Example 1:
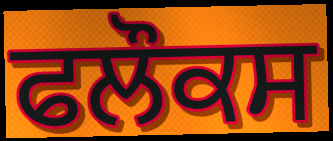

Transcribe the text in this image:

ਫਲੌਕਸ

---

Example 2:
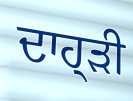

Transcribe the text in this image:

ਦਾਹ੍ੜੀ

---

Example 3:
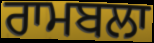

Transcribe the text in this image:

ਰਾਮਬਲਾ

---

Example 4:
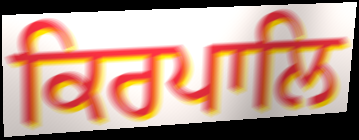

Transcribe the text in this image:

ਕਿਰਪਾਲਿ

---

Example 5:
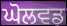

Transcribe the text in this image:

ਘੋਲਵਡ